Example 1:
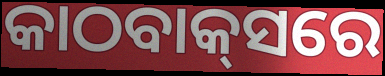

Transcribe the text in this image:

କାଠବାକ୍‍ସରେ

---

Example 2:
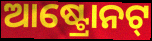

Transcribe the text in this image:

ଆଷ୍ଟ୍ରୋନଟ୍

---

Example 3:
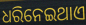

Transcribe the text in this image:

ଧରିନେଇଥାଏ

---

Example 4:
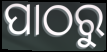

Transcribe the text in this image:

ପାଠରୁ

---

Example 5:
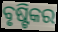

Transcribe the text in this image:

ବୃଷ୍ଟିକର